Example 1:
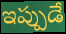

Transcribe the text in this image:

ఇప్పుడే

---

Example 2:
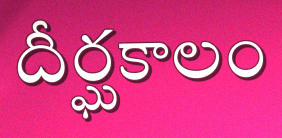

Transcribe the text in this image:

దీర్ఘకాలం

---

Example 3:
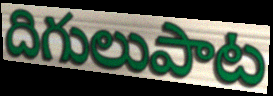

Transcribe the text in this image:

దిగులుపాట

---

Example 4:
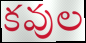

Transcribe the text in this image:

కవుల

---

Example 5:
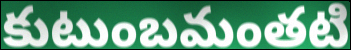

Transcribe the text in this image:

కుటుంబమంతటి